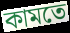
কামতে